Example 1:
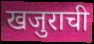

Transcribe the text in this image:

खजुराची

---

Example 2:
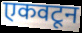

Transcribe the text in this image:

एकवटून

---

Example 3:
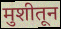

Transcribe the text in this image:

मुशीतून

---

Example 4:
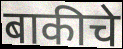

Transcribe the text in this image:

बाकीचे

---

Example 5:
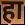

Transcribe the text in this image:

हा